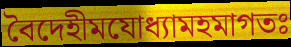
বৈদেহীমযোধ্যামহমাগতঃ